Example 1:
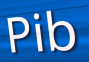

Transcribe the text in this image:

Pib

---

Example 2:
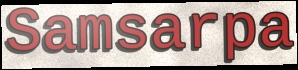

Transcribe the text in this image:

Samsarpa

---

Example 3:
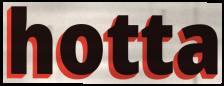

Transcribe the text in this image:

hotta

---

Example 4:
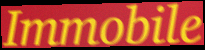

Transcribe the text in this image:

Immobile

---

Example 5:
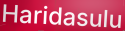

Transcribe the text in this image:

Haridasulu